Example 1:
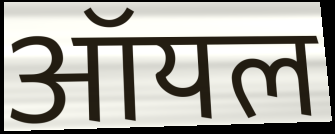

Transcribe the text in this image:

ऑयल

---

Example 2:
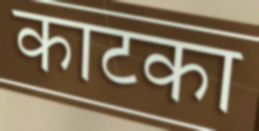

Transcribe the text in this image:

काटका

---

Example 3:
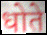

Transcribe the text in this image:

धोते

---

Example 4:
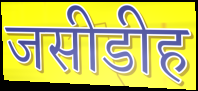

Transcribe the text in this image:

जसीडीह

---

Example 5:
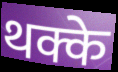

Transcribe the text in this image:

थक्के